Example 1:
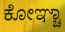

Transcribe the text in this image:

ಕೋಞ್ಚಾ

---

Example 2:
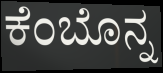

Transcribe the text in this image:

ಕೆಂಬೊನ್ನ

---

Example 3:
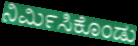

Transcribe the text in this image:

ನಿರ್ಮಿಸಿಕೊಂಡು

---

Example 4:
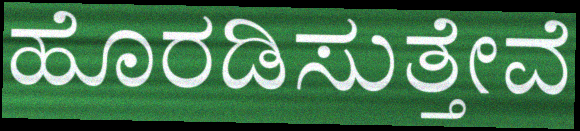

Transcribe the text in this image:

ಹೊರಡಿಸುತ್ತೇವೆ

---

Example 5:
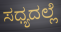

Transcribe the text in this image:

ಸಧ್ಯದಲ್ಲೆ